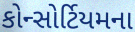
કોન્સોર્ટિયમના